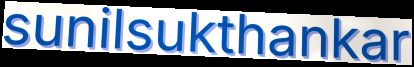
sunilsukthankar